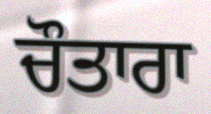
ਚੌਤਾਰਾ